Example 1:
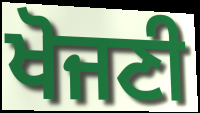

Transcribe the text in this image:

ਖੋਜਣੀ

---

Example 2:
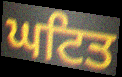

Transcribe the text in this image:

ਘਟਿਤ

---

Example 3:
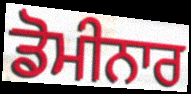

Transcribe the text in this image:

ਡੋਮੀਨਾਰ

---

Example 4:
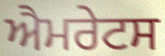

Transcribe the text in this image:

ਐਮਰੇਟਸ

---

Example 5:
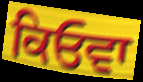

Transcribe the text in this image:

ਕਿਓਵਾ